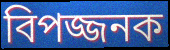
বিপজ্জনক